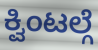
ಕ್ವಿಂಟಲ್ಗೆ